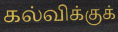
கல்விக்குக்